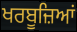
ਖਰਬੂਜ਼ਿਆਂ